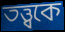
তত্ত্বকে